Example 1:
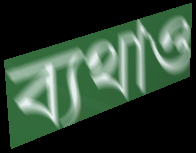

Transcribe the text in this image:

ব্যথাও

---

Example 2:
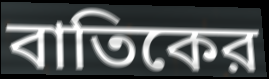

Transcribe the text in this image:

বাতিকের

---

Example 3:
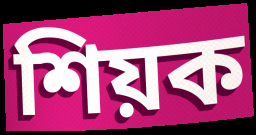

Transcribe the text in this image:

শিয়ক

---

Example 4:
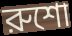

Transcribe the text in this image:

রুশো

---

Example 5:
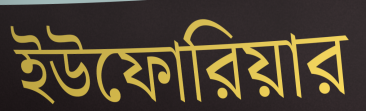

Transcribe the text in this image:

ইউফোরিয়ার